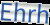
Ehrh